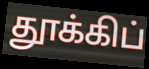
தூக்கிப்